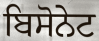
ਬਿਸੋਨੇਟ